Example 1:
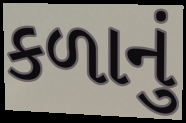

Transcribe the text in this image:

કળાનું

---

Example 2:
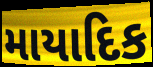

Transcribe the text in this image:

માયાદિક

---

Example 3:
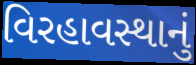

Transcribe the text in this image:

વિરહાવસ્થાનું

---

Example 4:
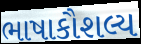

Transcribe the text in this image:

ભાષાકૌશલ્ય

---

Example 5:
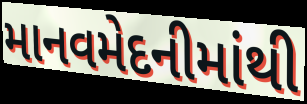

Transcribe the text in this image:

માનવમેદનીમાંથી